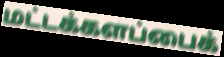
மட்டக்களப்பைக்